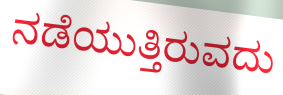
ನಡೆಯುತ್ತಿರುವದು